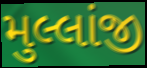
મુલ્લાંજી